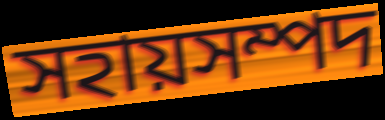
সহায়সম্পদ